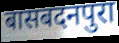
बासबदनपुरा